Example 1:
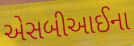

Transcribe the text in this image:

એસબીઆઈના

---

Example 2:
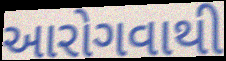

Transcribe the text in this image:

આરોગવાથી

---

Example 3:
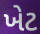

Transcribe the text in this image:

ખેટ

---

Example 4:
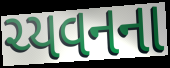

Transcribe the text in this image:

ચ્યવનના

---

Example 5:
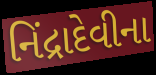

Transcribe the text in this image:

નિંદ્રાદેવીના